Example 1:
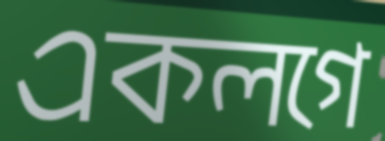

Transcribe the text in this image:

একলগে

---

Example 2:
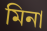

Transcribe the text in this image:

মিনা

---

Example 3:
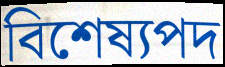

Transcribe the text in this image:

বিশেষ্যপদ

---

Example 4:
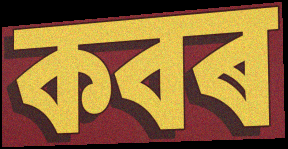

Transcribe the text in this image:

কবৰ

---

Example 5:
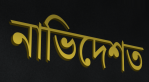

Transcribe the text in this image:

নাভিদেশত